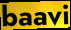
baavi